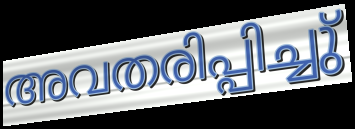
അവതരിപ്പിച്ചു്